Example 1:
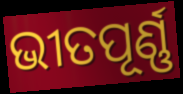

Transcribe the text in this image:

ଭୀତପୂର୍ଣ୍ଣ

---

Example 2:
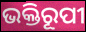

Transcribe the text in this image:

ଭକ୍ତିରୂପୀ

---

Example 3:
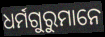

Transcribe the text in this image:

ଧର୍ମଗୁରୁମାନେ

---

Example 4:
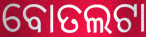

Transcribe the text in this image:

ବୋତଲଟା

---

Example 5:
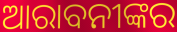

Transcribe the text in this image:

ଆରାବନୀଙ୍କର